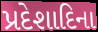
પ્રદેશાદિના